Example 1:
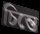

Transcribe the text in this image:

চিন্তে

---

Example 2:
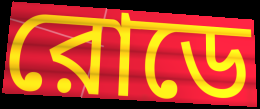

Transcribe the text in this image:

রোডে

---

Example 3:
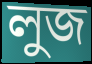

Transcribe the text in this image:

লুজ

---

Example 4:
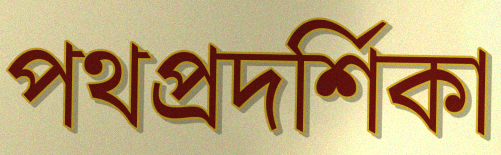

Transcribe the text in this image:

পথপ্রদর্শিকা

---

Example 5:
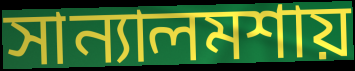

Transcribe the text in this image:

সান্যালমশায়